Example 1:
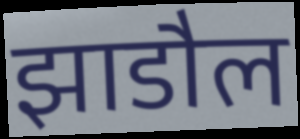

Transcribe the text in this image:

झाडौल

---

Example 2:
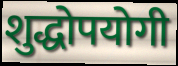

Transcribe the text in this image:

शुद्धोपयोगी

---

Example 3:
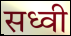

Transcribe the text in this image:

सध्वी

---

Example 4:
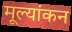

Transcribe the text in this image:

मूल्‍यांकन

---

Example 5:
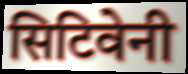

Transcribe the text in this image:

सिटिवेनी